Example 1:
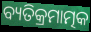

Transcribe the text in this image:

ବ୍ୟତିକ୍ରମାତ୍ମକ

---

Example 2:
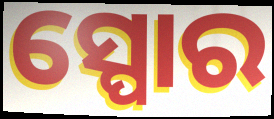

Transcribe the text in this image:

ସ୍ପୋର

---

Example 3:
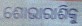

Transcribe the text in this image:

ଶୋଭାରାଶିକୁ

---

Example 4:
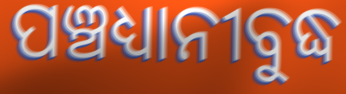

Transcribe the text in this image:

ପଞ୍ଚଧ୍ୟାନୀବୁଦ୍ଧ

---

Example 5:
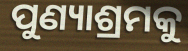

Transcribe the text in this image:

ପୁଣ୍ୟାଶ୍ରମକୁ